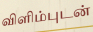
விளிம்புடன்